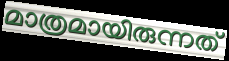
മാത്രമായിരുന്നത്